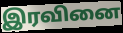
இரவினை